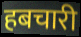
हबचारी